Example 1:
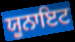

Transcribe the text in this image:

ਯੂਨਾਇਟ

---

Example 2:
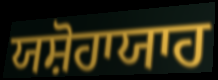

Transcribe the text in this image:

ਯਸ਼ੋਹਾਯਾਹ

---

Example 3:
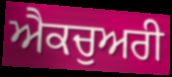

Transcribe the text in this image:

ਐਕਚੁਅਰੀ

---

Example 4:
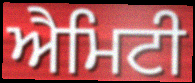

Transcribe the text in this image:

ਐਮਿਟੀ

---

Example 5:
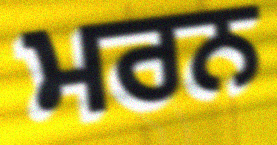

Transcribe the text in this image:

ਮਰਨ